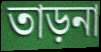
তাড়না